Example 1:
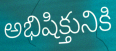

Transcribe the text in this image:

అభిషిక్తునికి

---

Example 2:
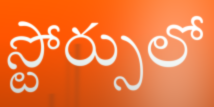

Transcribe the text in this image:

స్టోర్సులో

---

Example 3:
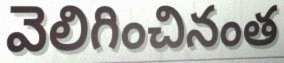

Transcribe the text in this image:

వెలిగించినంత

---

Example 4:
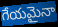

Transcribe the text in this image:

గేయమైనా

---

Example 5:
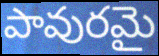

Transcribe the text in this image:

పావురమై